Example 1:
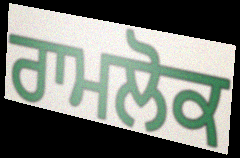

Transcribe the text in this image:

ਰਾਮਲੋਕ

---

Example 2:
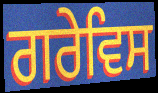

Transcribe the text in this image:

ਗਰੇਵਿਸ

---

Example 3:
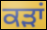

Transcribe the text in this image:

ਕੜਾਂ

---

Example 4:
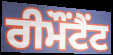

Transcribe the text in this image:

ਰੀਮੌਂਟੈਂਟ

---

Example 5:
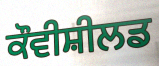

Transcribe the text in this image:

ਕੌਵੀਸ਼ੀਲਡ